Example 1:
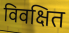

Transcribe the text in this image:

विवक्षित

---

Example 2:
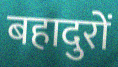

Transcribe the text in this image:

बहादुरों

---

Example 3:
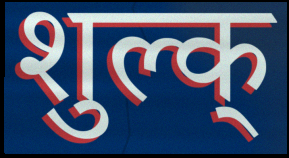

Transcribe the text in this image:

शुल्क्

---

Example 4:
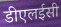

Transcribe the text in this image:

डीएलईसी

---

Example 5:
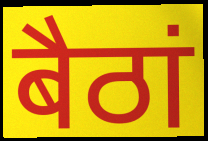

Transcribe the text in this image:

बैठां